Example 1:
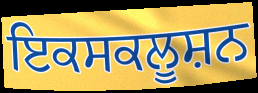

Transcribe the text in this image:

ਇਕਸਕਲੂਸ਼ਨ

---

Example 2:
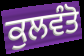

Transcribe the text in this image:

ਕੁਲਵੰਤੋ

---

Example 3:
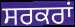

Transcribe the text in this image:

ਸਰਕਰਾਂ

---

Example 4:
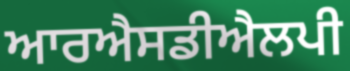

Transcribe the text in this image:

ਆਰਐਸਡੀਐਲਪੀ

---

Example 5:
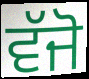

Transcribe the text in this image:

ਵੱਜੋ